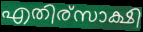
എതിര്സാക്ഷി